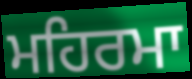
ਮਹਿਰਮਾ